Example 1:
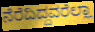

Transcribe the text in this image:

ನೆರೆದಿದ್ದವರೆಲ್ಲಾ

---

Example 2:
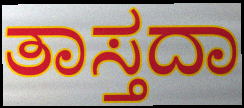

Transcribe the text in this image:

ತಾಸ್ತದಾ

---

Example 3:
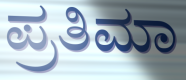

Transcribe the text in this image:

ಪ್ರತಿಮಾ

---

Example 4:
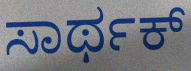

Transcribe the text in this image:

ಸಾರ್ಥಕ್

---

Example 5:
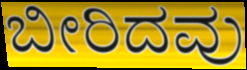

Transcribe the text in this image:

ಬೀರಿದವು